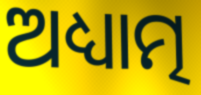
ଅଧ୍ୟାତ୍ମ